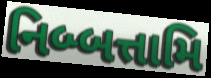
નિબ્બત્તામિ